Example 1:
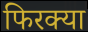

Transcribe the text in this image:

फिरक्या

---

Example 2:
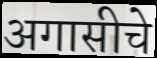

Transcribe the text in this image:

अगासीचे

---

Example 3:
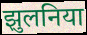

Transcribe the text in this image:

झुलनिया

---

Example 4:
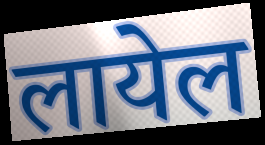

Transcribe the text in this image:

लायेल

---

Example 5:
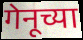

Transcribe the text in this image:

गेनूच्या